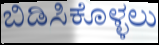
ಬಿಡಿಸಿಕೊಳ್ಳಲು